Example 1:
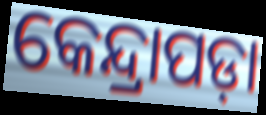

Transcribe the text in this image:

କେନ୍ଦ୍ରାପଡ଼ା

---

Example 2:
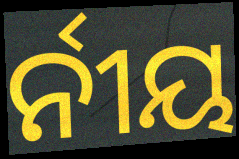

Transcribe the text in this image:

ର୍ନୀୟ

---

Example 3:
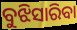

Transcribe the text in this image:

ବୁଝିସାରିବା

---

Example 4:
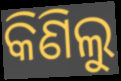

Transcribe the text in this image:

କିଣିଲୁ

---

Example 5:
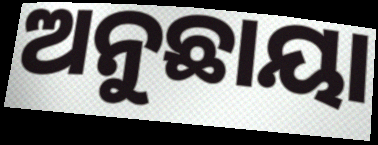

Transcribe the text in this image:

ଅନୁଛାୟା